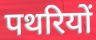
पथरियों